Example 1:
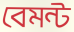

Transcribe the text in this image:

বেমন্ট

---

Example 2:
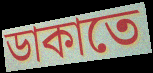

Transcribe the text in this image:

ডাকাতে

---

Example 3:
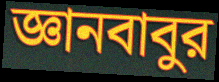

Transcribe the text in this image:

জ্ঞানবাবুর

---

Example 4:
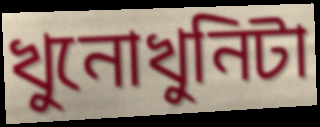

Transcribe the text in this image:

খুনোখুনিটা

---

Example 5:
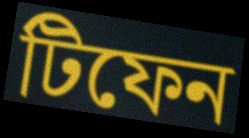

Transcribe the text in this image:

টিফেন